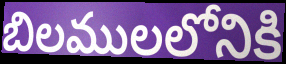
బిలములలోనికి